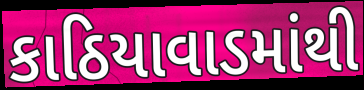
કાઠિયાવાડમાંથી